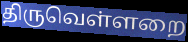
திருவெள்ளறை